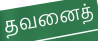
தவனைத்